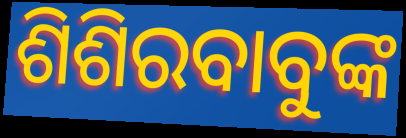
ଶିଶିରବାବୁଙ୍କ